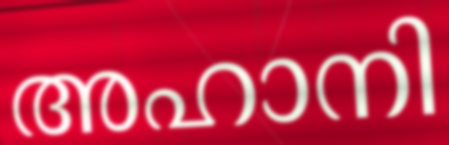
അഹാനി